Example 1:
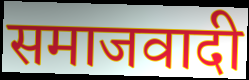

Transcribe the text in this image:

समाजवादी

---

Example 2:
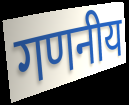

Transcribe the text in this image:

गणनीय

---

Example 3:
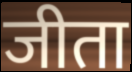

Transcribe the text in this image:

जीता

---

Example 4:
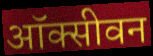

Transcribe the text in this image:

ऑक्सीवन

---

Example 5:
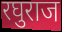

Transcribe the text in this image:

रघुराज